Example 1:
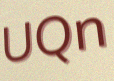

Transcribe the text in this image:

UQn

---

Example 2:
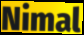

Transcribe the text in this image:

Nimal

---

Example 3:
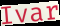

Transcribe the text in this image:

Ivar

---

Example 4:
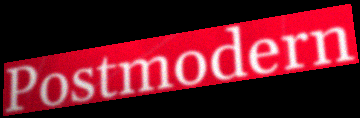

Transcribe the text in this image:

Postmodern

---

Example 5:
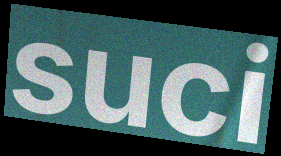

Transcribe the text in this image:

suci